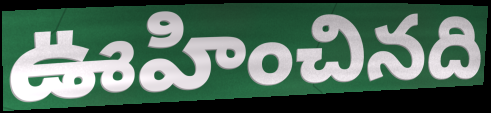
ఊహించినది